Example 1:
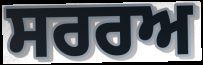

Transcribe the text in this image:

ਸਰਰਅ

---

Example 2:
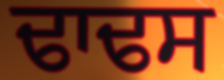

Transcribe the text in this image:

ਢਾਢਸ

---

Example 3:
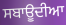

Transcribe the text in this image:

ਸਬਾਊਦੀਆ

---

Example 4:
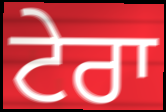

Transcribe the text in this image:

ਟੇਰਾ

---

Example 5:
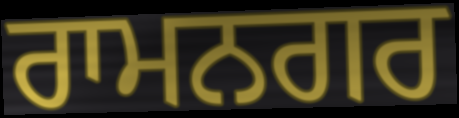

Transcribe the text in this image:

ਰਾਮਨਗਰ